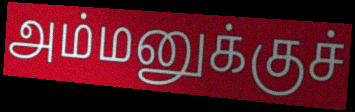
அம்மனுக்குச்